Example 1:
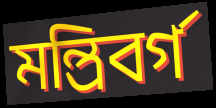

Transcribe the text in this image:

মন্ত্রিবর্গ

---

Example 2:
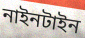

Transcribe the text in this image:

নাইনটাইন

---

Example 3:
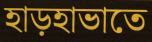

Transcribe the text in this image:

হাড়হাভাতে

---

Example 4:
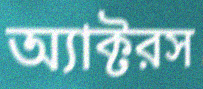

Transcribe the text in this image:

অ্যাক্টরস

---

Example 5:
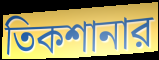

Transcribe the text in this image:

তিকশানার